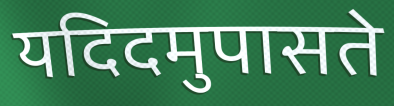
यदिदमुपासते